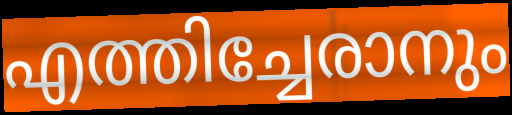
എത്തിച്ചേരാനും